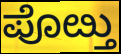
ಪೊೞ್ತು